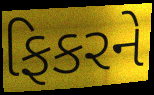
ફિકરને